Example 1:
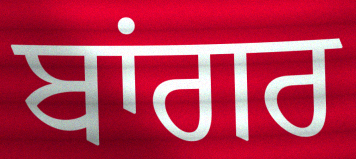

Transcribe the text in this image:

ਬਾਂਗਰ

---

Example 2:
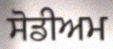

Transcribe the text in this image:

ਸੋਡੀਅਮ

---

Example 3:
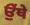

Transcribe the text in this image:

ਉੁੱਥੇ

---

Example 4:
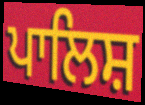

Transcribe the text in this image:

ਪਾਲਿਸ਼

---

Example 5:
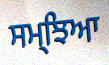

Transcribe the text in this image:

ਸਮ੍ਝਿਆ